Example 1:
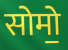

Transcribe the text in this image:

सोमो॒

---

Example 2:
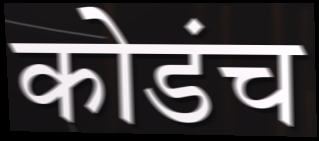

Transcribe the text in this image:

कोडंच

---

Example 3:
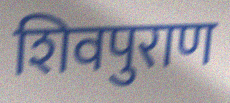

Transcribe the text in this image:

शिवपुराण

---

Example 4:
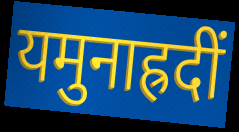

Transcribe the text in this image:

यमुनाह्रदीं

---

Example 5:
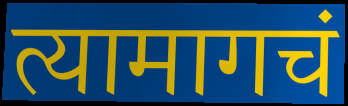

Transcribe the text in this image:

त्यामागचं